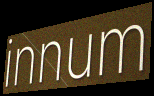
innum